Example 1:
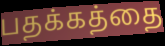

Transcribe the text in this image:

பதக்கத்தை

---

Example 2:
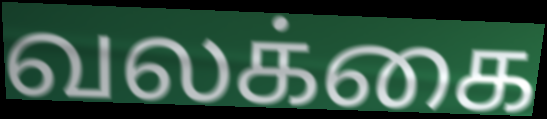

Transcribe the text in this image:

வலக்கை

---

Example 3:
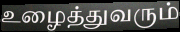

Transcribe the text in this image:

உழைத்துவரும்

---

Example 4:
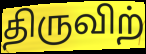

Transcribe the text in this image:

திருவிற்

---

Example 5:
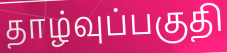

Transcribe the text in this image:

தாழ்வுப்பகுதி